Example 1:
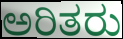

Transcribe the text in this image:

ಅರಿತರು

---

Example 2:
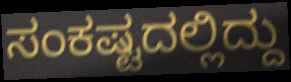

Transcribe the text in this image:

ಸಂಕಷ್ಟದಲ್ಲಿದ್ದು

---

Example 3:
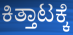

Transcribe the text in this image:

ಕಿತ್ತಾಟಕ್ಕೆ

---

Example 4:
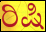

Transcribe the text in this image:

ರಿಷಿ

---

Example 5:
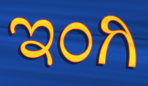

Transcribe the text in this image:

ಇಂಗಿ